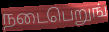
நடைபெறுங்